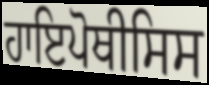
ਹਾਇਪੋਥੀਸਿਸ